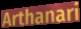
Arthanari